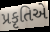
પ્રકૃતિએ